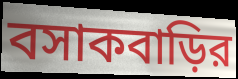
বসাকবাড়ির